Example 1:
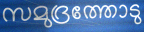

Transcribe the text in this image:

സമുദ്രത്തോടു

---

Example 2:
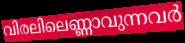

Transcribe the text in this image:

വിരലിലെണ്ണാവുന്നവർ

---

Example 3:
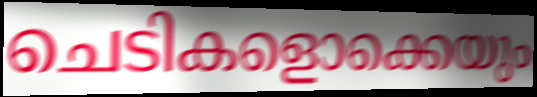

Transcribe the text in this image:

ചെടികളൊക്കെയും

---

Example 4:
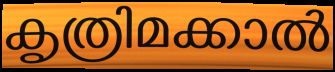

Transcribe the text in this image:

കൃത്രിമക്കാൽ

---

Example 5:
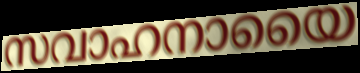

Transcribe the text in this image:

സവാഹനായൈ